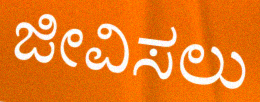
ಜೀವಿಸಲು